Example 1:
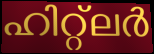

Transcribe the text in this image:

ഹിറ്റ്ലർ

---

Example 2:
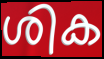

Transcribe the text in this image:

ശിക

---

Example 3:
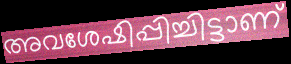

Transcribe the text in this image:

അവശേഷിപ്പിച്ചിട്ടാണ്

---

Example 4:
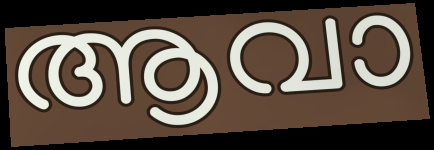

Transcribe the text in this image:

ആവാ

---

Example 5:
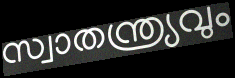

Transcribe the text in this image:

സ്വാതന്ത്ര്യവും